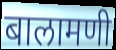
बालामणी